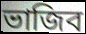
ভাজিব